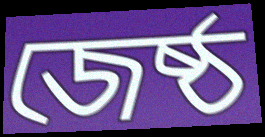
জেষ্ঠ